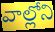
వాల్లోని